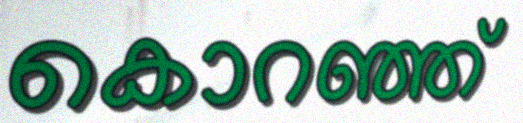
കൊറഞ്ഞ്